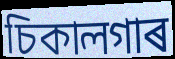
চিকালগাৰ